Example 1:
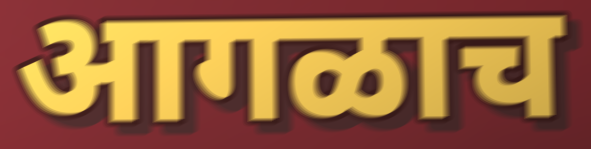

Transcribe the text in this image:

आगळाच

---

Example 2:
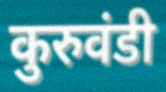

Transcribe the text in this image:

कुरुवंडी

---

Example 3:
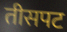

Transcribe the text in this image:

तीसपट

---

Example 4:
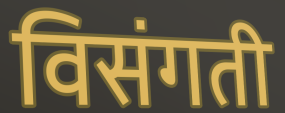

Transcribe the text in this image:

विसंगती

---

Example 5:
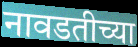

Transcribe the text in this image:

नावडतीच्या